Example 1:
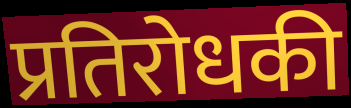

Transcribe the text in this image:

प्रतिरोधकी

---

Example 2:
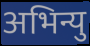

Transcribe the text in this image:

अभिन्यु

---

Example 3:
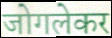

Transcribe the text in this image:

जोगलेकर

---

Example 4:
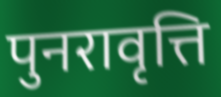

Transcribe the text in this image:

पुनरावृत्ति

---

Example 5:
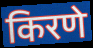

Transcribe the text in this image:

किरणे